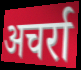
अचर्रा